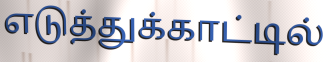
எடுத்துக்காட்டில்